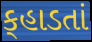
ક્‌હાડતાં